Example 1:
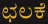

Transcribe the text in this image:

ಛಲಕೆ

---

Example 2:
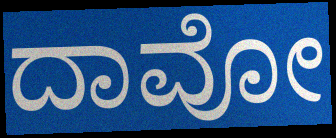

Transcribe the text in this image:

ದಾವೋ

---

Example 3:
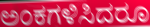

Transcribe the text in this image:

ಅಂಕಗಳಿಸಿದರೂ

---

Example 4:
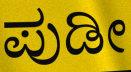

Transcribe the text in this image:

ಪುಡೀ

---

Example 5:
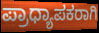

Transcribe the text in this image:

ಪ್ರಾಧ್ಯಾಪಕರಾಗಿ